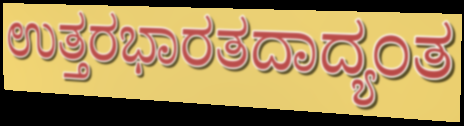
ಉತ್ತರಭಾರತದಾದ್ಯಂತ